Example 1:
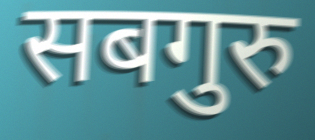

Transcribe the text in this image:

सबगुरु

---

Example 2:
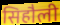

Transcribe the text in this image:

सिहौली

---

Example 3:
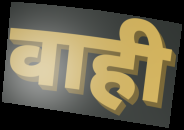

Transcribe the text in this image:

वाही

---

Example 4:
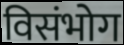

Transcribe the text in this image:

विसंभोग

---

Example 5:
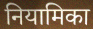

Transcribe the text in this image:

नियामिका